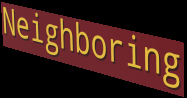
Neighboring